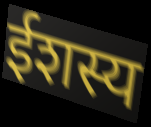
ईशस्य